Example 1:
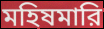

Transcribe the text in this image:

মহিষমারি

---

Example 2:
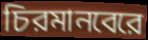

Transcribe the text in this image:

চিরমানবেরে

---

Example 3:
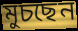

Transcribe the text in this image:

মুচছেন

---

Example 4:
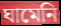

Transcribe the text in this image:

ঘামেনি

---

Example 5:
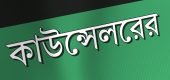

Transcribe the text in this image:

কাউন্সেলরের